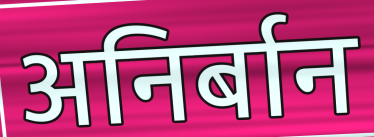
अनिर्बान